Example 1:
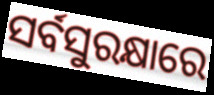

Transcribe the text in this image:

ସର୍ବସୁରକ୍ଷାରେ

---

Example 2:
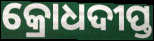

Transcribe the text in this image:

କ୍ରୋଧଦୀପ୍ତ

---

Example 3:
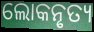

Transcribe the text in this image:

ଲୋକନୃତ୍ଯ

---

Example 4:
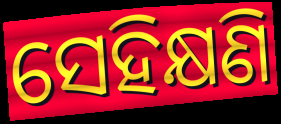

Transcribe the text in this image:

ସେହିକ୍ଷଣି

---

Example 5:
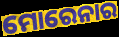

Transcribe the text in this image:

ମୋରେନାର